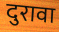
दुरावा